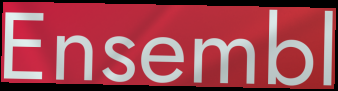
Ensembl